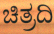
ಚಿತ್ರದಿ